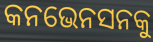
କନଭେନସନକୁ